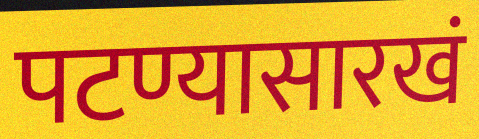
पटण्यासारखं